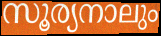
സൂര്യനാലും